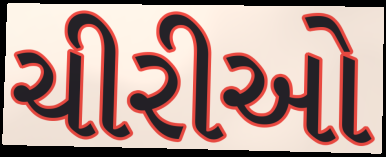
ચીરીઓ